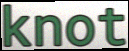
knot